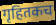
गृहितकच